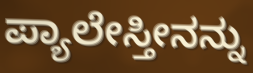
ಪ್ಯಾಲೇಸ್ತೀನನ್ನು